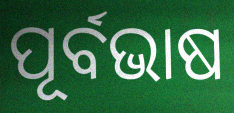
ପୂର୍ବଭାଷ